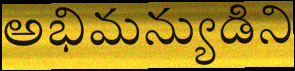
అభిమన్యుడిని